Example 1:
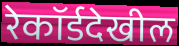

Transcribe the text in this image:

रेकॉर्डदेखील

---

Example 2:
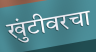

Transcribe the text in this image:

खुंटीवरचा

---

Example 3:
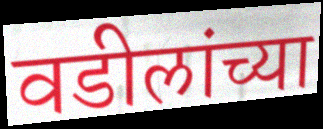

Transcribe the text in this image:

वडीलांच्या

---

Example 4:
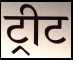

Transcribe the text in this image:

ट्रीट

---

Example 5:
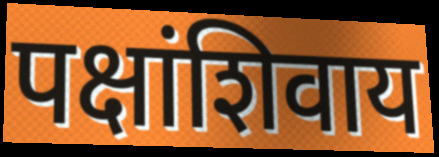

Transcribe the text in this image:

पक्षांशिवाय